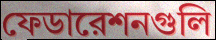
ফেডারেশনগুলি